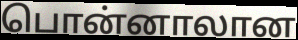
பொன்னாலான